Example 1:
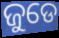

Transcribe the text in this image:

ଜୁଡେ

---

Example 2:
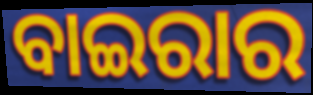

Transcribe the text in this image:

ବାଇରାର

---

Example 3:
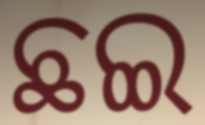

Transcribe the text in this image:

ଛଇ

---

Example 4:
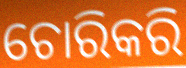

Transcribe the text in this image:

ଚୋରିକରି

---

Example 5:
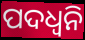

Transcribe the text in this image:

ପଦଧ୍ୱନି